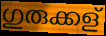
ഗുരുക്കള്